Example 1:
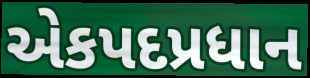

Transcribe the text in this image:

એકપદપ્રધાન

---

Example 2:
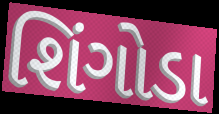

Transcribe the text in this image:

શિંગોડા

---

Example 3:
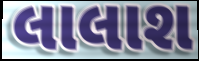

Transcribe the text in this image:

લાલાશ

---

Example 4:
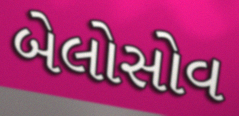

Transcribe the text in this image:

બેલોસોવ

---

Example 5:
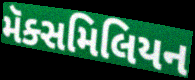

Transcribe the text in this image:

મૅક્સમિલિયન